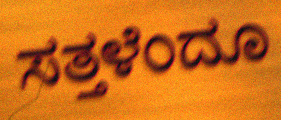
ಸತ್ತಳೆಂದೂ